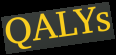
QALYs